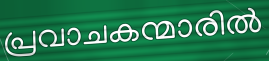
പ്രവാചകന്മാരിൽ